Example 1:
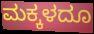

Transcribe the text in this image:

ಮಕ್ಕಳದೂ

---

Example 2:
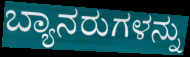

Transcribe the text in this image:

ಬ್ಯಾನರುಗಳನ್ನು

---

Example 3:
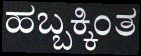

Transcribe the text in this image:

ಹಬ್ಬಕ್ಕಿಂತ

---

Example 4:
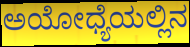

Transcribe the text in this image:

ಅಯೋಧ್ಯೆಯಲ್ಲಿನ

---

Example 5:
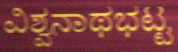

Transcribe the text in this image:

ವಿಶ್ವನಾಥಭಟ್ಟ